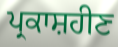
ਪ੍ਰਕਾਸ਼ਹੀਣ